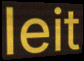
leit